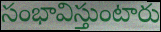
సంభావిస్తుంటారు